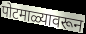
पोटमाळ्यावरून